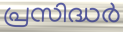
പ്രസിദ്ധർ